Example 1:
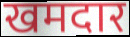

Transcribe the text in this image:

खमदार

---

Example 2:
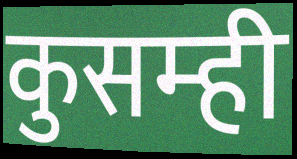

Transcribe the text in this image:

कुसम्ही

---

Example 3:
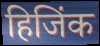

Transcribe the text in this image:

हिजिंक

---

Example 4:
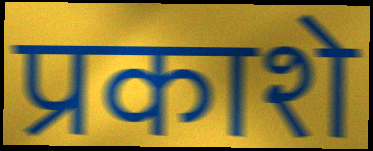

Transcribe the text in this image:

प्रकाशे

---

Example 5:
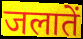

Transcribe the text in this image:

जलातें